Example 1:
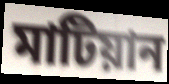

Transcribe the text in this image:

মাটিয়ান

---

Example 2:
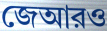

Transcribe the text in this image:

জেআরও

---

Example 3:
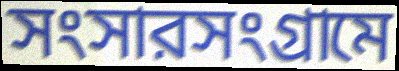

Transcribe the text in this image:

সংসারসংগ্রামে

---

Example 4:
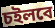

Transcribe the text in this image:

চইলবে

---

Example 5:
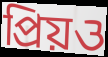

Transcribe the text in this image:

প্রিয়ও